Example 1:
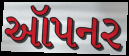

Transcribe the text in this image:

ઑપનર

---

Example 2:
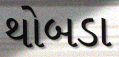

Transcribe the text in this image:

થોબડા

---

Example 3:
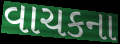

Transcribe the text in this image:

વાચકના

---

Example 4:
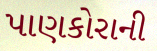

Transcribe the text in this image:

પાણકોરાની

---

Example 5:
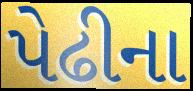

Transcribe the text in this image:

પેઢીના